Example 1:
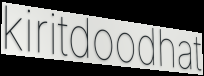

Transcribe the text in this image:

kiritdoodhat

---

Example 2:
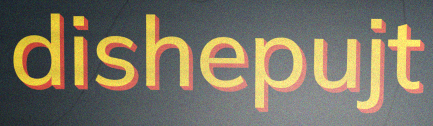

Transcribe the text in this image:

dishepujt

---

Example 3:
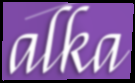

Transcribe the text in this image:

alka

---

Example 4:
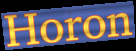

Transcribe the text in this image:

Horon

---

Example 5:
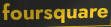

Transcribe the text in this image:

foursquare